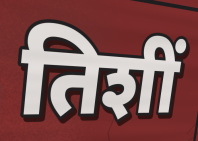
तिशीं